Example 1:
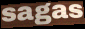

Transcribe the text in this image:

sagas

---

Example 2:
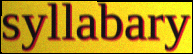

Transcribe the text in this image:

syllabary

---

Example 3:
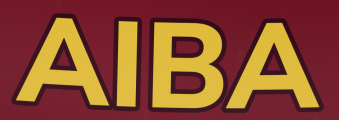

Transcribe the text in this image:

AIBA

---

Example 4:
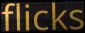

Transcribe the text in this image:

flicks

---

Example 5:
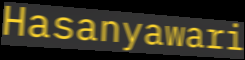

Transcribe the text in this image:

Hasanyawari